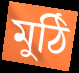
মুঠি